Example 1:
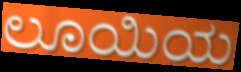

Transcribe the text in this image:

ಲೂಯಿಯ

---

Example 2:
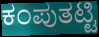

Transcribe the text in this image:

ಕಂಪುತಟ್ಟಿ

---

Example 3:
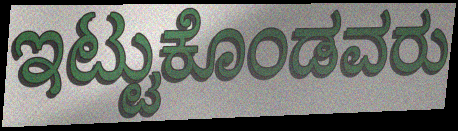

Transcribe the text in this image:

ಇಟ್ಟುಕೊಂಡವರು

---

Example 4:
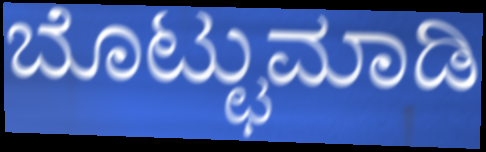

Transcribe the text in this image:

ಬೊಟ್ಟುಮಾಡಿ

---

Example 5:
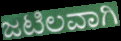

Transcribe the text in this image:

ಜಟಿಲವಾಗಿ